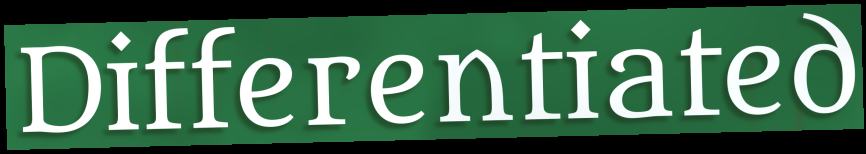
Differentiated